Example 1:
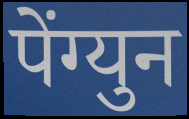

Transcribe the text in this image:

पेंग्युन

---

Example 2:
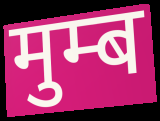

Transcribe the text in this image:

मुम्ब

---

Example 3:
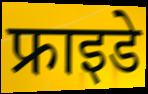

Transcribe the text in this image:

फ्राइडे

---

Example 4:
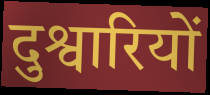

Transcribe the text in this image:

दुश्वारियों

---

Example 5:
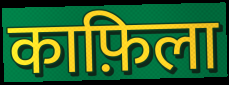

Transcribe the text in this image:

काफ़िला